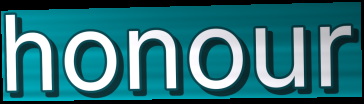
honour